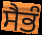
ਸੈਭੰ